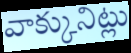
వాక్కునిట్లు